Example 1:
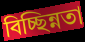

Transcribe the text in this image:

বিচ্ছিন্নতা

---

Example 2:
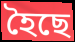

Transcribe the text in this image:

হৈছে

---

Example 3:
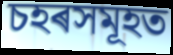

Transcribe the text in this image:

চহৰসমূহত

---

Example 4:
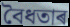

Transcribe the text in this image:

বৈধতাৰ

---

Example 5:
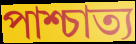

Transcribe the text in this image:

পাশ্চাত্য